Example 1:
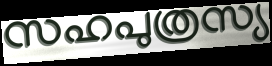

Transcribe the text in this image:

സഹപുത്രസ്യ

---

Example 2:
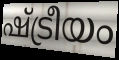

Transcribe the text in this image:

ഷ്ട്രീയം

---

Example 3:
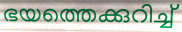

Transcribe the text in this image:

ഭയത്തെക്കുറിച്ച്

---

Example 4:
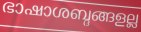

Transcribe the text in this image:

ഭാഷാശബ്ദങ്ങളല്ല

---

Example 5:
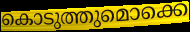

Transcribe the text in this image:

കൊടുത്തുമൊക്കെ